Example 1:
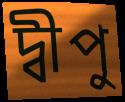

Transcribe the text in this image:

দ্বীপু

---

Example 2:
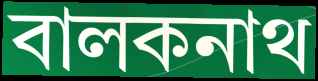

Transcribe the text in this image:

বালকনাথ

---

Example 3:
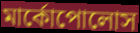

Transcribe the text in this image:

মার্কোপোলোস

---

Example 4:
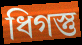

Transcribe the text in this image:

ধিগস্তু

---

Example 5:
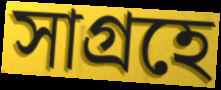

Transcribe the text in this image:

সাগ্রহে